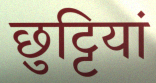
छुट्टियां